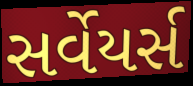
સર્વેયર્સ